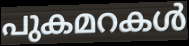
പുകമറകൾ